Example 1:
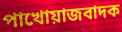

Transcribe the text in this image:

পাখোয়াজবাদক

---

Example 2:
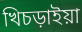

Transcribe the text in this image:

খিচড়াইয়া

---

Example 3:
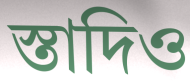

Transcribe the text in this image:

স্তাদিও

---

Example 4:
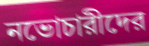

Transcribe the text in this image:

নভোচারীদের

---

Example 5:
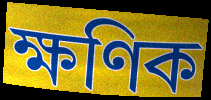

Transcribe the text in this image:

ক্ষণিক